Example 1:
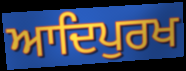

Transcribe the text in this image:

ਆਦਿਪੁਰਖ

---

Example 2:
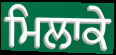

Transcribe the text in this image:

ਮਿਲਾਕੇ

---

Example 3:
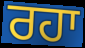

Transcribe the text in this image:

ਰਹਾ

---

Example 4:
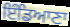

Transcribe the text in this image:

ਇੰਡਿਆਣਾ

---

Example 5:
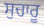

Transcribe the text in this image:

ਸੁਚਾਰੂ